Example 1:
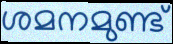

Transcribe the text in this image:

ശമനമുണ്ട്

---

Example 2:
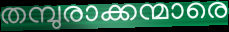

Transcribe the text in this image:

തമ്പുരാക്കന്മാരെ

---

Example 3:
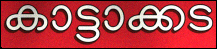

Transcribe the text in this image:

കാട്ടാക്കട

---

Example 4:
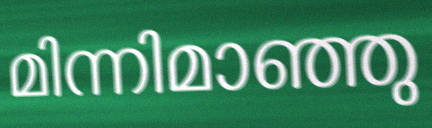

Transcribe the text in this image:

മിന്നിമാഞ്ഞു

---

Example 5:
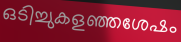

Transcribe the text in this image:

ഒടിച്ചുകളഞ്ഞശേഷം